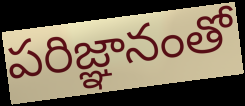
పరిజ్ఞానంతో